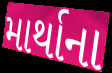
માર્થાના